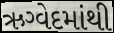
ઋગ્વેદમાંથી